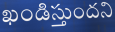
ఖండిస్తుందని